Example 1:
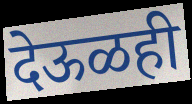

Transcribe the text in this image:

देऊळही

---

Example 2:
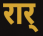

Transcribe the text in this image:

रार्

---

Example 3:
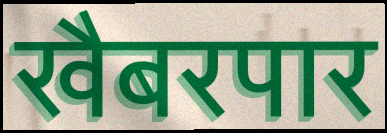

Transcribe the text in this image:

खैबरपार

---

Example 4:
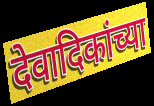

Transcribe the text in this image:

देवादिकांच्या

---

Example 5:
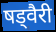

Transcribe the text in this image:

षड्वैरी